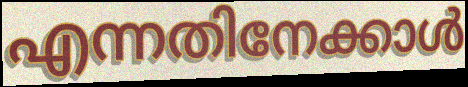
എന്നതിനേക്കാൾ